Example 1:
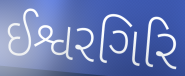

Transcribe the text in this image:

ઈશ્વરગિરિ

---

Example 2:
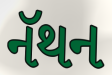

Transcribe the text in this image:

નૅથન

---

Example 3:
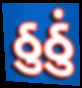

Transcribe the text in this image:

ઠુઠું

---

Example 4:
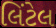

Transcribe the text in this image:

લિંટેલ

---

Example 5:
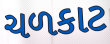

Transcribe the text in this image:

ચળકાટ